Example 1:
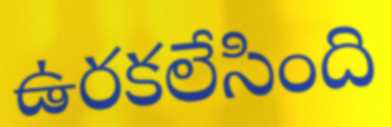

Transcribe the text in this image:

ఉరకలేసింది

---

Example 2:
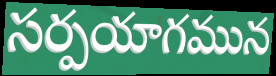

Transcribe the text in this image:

సర్పయాగమున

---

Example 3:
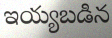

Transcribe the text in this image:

ఇయ్యబడిన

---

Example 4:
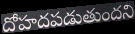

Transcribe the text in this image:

దోహదపడుతుందని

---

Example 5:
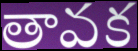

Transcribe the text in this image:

తావక